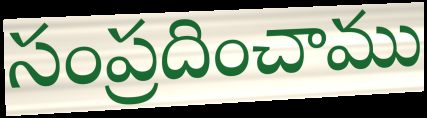
సంప్రదించాము